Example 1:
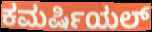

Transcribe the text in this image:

ಕಮರ್ಷಿಯಲ್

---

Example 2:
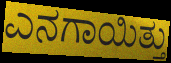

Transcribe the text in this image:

ಎನಗಾಯಿತ್ತು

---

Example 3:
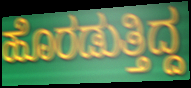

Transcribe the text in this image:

ಹೊರಡುತ್ತಿದ್ದ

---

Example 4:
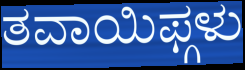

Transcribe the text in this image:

ತವಾಯಿಫ್ಗಳು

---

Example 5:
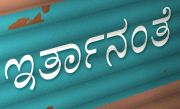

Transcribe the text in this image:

ಇರ್ತಾನಂತೆ